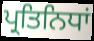
ਪ੍ਰਤਿਨਿਧਾਂ